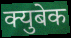
क्युबेक